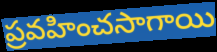
ప్రవహించసాగాయి